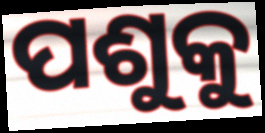
ପଶୁକୁ